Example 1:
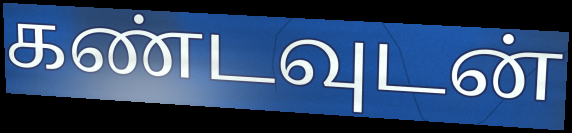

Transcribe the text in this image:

கண்டவுடன்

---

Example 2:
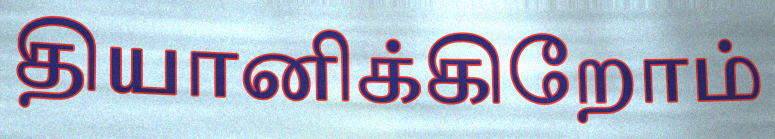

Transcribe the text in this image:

தியானிக்கிறோம்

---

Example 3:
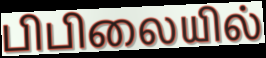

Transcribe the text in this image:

பிபிலையில்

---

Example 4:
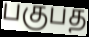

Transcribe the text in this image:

பகுபத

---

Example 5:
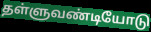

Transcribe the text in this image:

தள்ளுவண்டியோடு